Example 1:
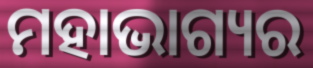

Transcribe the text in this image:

ମହାଭାଗ୍ୟର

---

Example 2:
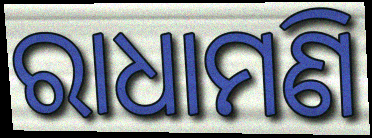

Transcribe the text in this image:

ରାଧାମଣି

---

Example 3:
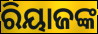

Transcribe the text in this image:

ରିୟାଜଙ୍କ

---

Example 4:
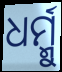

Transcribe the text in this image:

ଧର୍ମ୍ମୁ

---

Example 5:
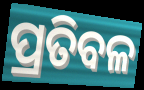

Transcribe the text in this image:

ପ୍ରତିବଳ